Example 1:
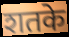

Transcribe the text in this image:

शतके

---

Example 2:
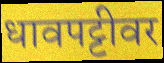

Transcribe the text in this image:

धावपट्टीवर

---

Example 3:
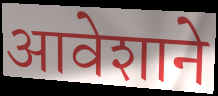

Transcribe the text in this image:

आवेशाने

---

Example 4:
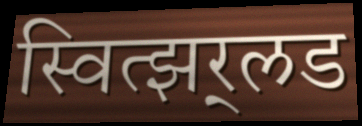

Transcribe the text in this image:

स्वित्झर्लड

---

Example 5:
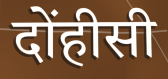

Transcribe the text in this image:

दोंहीसी